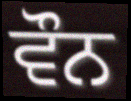
ਵੌਨ